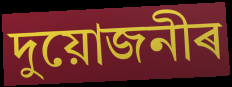
দুয়োজনীৰ